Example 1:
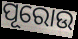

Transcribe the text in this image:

ପୂରୋଉ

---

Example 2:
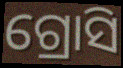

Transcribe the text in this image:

ଗ୍ରୋସି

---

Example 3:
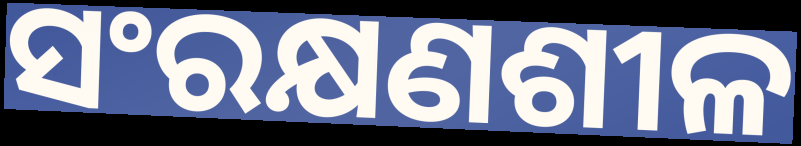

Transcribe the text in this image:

ସଂରକ୍ଷଣଶୀଳ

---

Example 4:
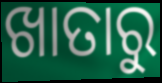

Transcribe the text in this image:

ଖାତାରୁ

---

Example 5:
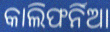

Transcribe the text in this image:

କାଲିଫର୍ନିଆ